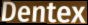
Dentex